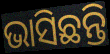
ଭାସିଛନ୍ତି